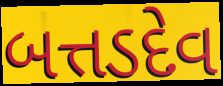
બત્તડદેવ